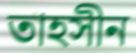
তাহসীন